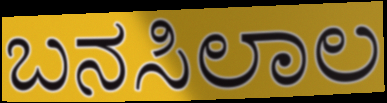
ಬನಸಿಲಾಲ